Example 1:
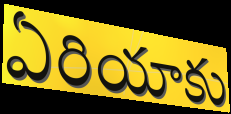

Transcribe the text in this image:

ఏరియాకు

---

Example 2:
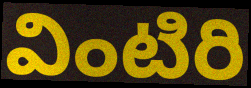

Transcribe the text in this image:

వింటిరి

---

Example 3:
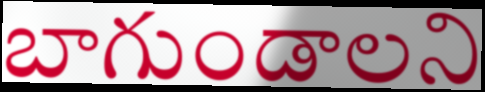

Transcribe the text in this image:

బాగుండాలని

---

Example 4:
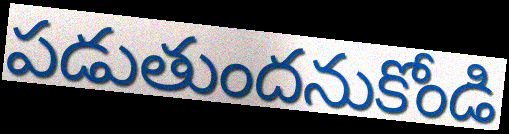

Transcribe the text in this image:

పడుతుందనుకోండి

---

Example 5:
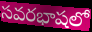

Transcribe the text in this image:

సవరభాషలో